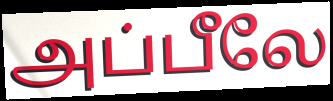
அப்பீலே